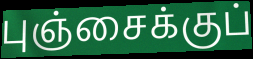
புஞ்சைக்குப்